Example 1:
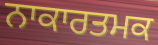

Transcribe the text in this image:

ਨਾਕਾਰਤਮਕ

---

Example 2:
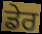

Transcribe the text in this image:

ਡੇਰ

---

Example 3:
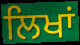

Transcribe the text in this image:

ਲਿਖਾਂ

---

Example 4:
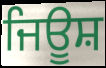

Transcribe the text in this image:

ਜਿਊਸ਼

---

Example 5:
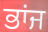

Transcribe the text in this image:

ਭਾਂਜ